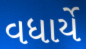
વધાર્યે